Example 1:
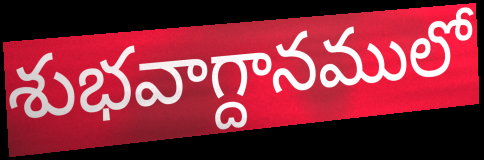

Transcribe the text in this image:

శుభవాగ్దానములో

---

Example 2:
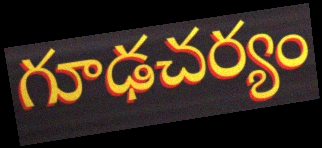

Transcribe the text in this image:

గూఢచర్యం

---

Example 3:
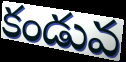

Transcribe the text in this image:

కండువ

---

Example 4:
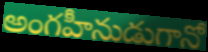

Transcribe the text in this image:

అంగహీనుడుగానో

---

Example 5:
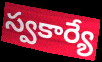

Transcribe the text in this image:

స్వకార్యే